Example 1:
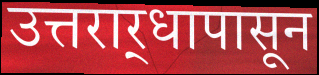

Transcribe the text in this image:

उत्तरार्धापासून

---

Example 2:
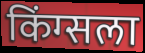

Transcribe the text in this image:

किंग्सला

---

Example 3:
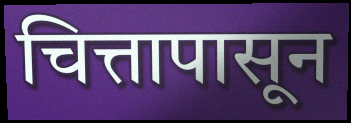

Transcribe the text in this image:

चित्तापासून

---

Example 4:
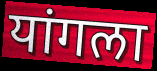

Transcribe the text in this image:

यांगला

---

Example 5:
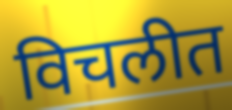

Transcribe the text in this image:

विचलीत